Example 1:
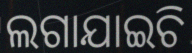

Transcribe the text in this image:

ଲଗାଯାଇଚି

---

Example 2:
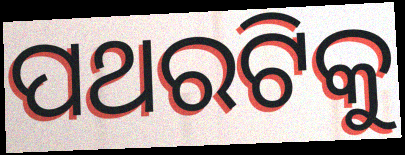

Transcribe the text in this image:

ପଥରଟିକୁ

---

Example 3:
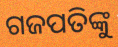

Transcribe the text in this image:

ଗଜପତିଙ୍କୁ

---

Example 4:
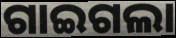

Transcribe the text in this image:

ଗାଇଗଲା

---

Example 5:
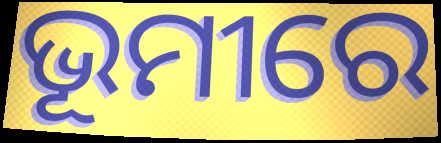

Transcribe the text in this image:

ଭୂମୀରେ